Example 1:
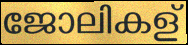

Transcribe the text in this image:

ജോലികള്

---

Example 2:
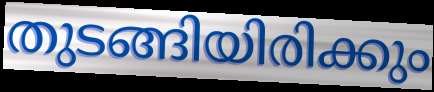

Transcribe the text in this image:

തുടങ്ങിയിരിക്കും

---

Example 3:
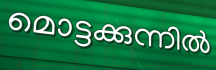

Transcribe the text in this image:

മൊട്ടക്കുന്നിൽ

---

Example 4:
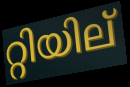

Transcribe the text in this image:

റ്റിയില്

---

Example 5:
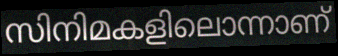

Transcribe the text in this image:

സിനിമകളിലൊന്നാണ്